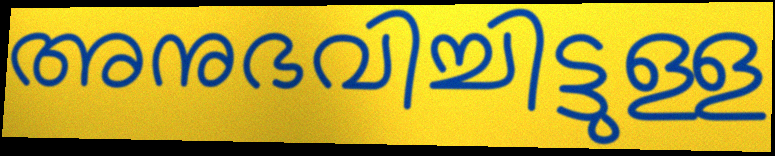
അനുഭവിച്ചിട്ടുള്ള